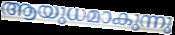
ആയുധമാകുന്നു